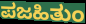
ಪಜಹಿತುಂ